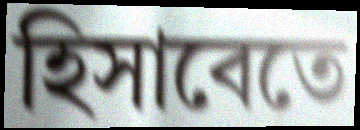
হিসাবেতে